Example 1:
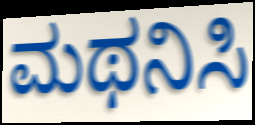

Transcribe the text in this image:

ಮಥನಿಸಿ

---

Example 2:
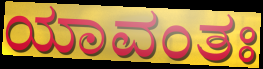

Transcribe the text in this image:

ಯಾವಂತಃ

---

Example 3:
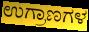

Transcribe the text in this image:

ಉಗ್ರಾಣಗಳ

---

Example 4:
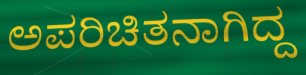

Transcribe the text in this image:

ಅಪರಿಚಿತನಾಗಿದ್ದ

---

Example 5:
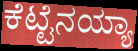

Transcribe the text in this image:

ಕೆಟ್ಟೆನಯ್ಯಾ